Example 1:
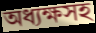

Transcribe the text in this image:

অধ্যক্ষসহ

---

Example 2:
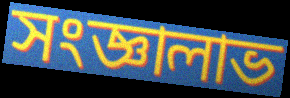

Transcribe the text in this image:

সংজ্ঞালাভ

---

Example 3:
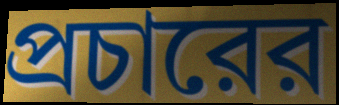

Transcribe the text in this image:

প্রচারের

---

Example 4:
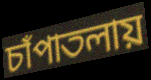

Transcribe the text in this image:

চাঁপাতলায়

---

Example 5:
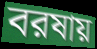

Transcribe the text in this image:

বরষায়